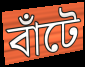
বাঁটে